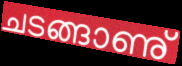
ചടങ്ങാണു്